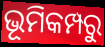
ଭୂମିକମ୍ପରୁ